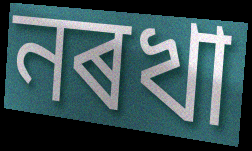
নৰখা